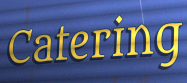
Catering